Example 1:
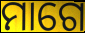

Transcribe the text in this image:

ମାଗେ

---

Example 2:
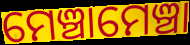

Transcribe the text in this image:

ମେଞ୍ଚାମେଞ୍ଚା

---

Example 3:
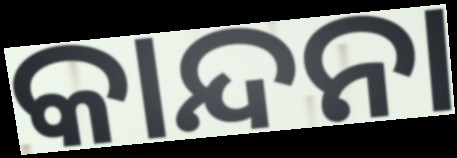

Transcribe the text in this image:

କାନ୍ଦନା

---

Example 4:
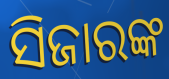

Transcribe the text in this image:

ସିଜାରଙ୍କ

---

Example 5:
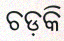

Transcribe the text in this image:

ଚଡ଼କି